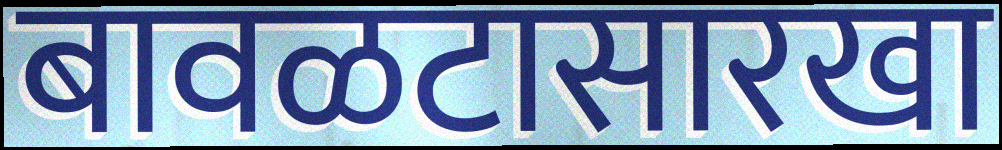
बावळटासारखा